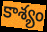
కాశ్యం